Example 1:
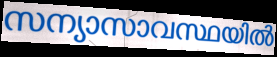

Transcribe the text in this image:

സന്യാസാവസ്ഥയിൽ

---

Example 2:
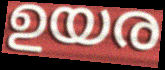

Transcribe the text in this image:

ഉയര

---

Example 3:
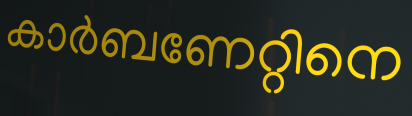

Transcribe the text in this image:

കാർബണേറ്റിനെ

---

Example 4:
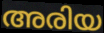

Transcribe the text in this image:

അരിയ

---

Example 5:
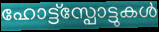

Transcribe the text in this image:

ഹോട്ട്സ്പോട്ടുകൾ